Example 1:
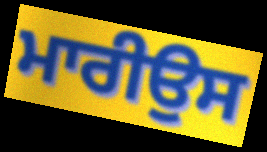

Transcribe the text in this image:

ਮਾਰੀਉਸ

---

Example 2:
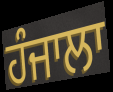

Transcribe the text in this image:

ਹੰਜਾਲਾ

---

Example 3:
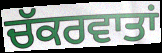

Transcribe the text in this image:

ਚੱਕਰਵਾਤਾਂ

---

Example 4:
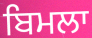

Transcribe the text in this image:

ਬਿਮਲਾ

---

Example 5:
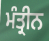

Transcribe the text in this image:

ਮੰਤ੍ਰੀਨ